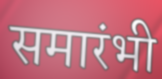
समारंभी